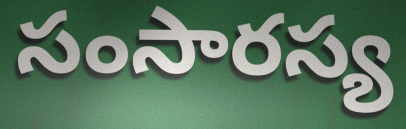
సంసారస్య